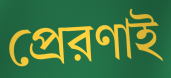
প্রেরণাই